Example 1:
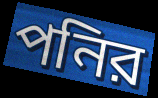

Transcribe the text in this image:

পনির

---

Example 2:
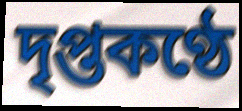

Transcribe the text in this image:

দৃপ্তকণ্ঠে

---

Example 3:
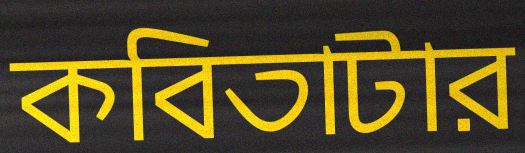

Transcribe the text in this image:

কবিতাটার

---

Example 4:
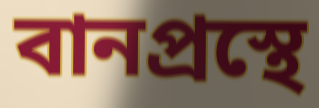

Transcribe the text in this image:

বানপ্রস্থে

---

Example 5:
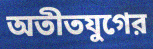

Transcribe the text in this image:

অতীতযুগের